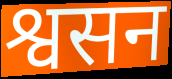
श्वसन